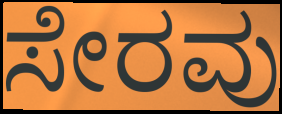
ಸೇರವು